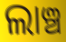
ଲାଞ୍ଚ